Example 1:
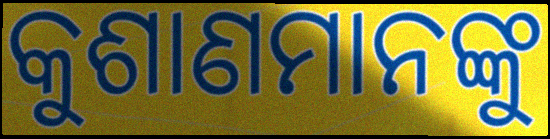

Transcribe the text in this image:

କୁଶାଣମାନଙ୍କୁ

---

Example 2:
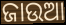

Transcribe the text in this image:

ଜାଉଆ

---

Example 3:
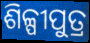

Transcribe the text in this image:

ଶିଳ୍ପୀପୁତ୍ର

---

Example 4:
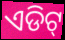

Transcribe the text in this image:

ଏଡିଟ୍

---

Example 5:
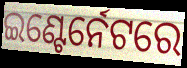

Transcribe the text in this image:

ଇଣ୍ଟେର୍ନେଟରେ